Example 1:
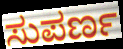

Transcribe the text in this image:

ಸುಪರ್ಣ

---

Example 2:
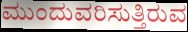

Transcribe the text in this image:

ಮುಂದುವರಿಸುತ್ತಿರುವ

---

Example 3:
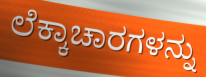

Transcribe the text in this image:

ಲೆಕ್ಕಾಚಾರಗಳನ್ನು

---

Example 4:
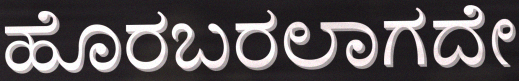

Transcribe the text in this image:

ಹೊರಬರಲಾಗದೇ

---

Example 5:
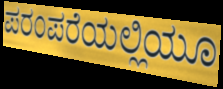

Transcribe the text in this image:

ಪರಂಪರೆಯಲ್ಲಿಯೂ